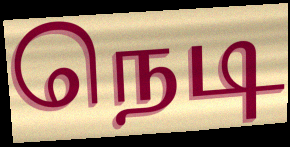
நெடி